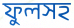
ফুলসহ